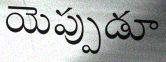
యెప్పుడూ